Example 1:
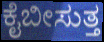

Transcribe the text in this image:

ಕೈಬೀಸುತ್ತ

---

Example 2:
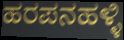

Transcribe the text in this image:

ಹರಪನಹಳ್ಳಿ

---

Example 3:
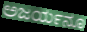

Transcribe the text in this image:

ಅಜರ್ಯನೂ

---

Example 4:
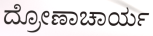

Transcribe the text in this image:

ದ್ರೋಣಾಚಾರ್ಯ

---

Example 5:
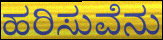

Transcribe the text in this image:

ಹರಿಸುವೆನು